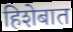
हिशेबात